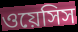
ওয়েসিস